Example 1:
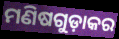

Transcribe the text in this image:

ମଣିଷଗୁଡ଼ାକର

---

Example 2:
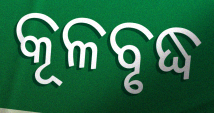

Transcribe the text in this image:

କୂଳବୃଦ୍ଧ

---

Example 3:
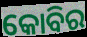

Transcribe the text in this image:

କୋବିର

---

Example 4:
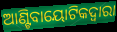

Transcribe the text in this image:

ଆଣ୍ଟିବାୟୋଟିକଦ୍ୱାରା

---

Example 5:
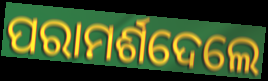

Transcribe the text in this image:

ପରାମର୍ଶଦେଲେ